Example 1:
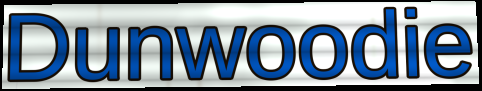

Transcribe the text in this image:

Dunwoodie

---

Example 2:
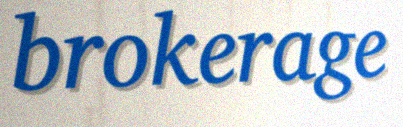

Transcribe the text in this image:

brokerage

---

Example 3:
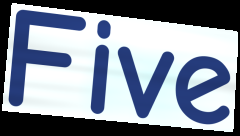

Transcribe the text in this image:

Five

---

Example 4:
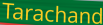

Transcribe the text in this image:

Tarachand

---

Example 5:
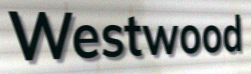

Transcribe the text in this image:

Westwood